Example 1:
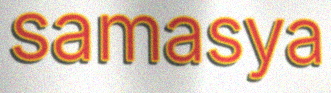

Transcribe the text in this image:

samasya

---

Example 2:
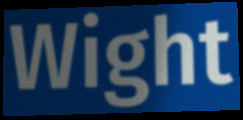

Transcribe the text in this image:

Wight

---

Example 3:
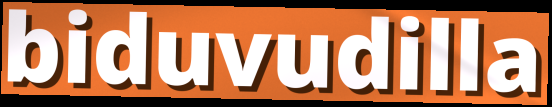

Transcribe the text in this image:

biduvudilla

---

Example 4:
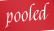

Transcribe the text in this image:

pooled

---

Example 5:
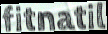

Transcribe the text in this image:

fitnatil